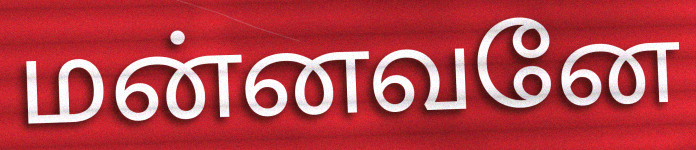
மன்னவனே